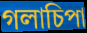
গলাচিপা